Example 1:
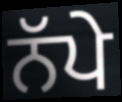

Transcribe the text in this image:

ਨੱਪੇ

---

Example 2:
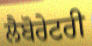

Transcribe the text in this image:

ਲੈਬੋਰੇਟਰੀ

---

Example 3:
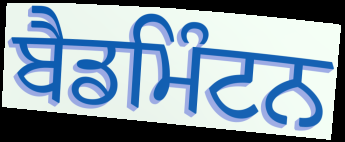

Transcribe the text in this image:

ਬੈਡਮਿੰਟਨ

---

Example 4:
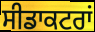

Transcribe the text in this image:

ਸੀਡਾਕਟਰਾਂ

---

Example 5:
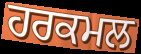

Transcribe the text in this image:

ਹਰਕਮਲ